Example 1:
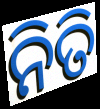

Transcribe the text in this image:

ନିତି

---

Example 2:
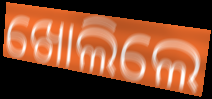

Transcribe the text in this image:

ଖୋଲିଲେ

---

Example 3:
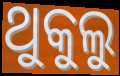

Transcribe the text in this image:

ଥୁକୁଲୁ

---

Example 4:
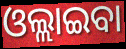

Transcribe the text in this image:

ଓଲ୍ଲାଇବା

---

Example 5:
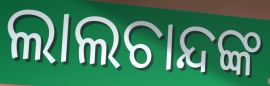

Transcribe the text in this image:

ଲାଲଚାନ୍ଦଙ୍କ